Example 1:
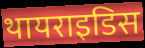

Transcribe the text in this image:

थायराइडिस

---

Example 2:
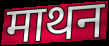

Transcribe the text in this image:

माथन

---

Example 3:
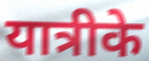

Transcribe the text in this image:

यात्रीके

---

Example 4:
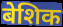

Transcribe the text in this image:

बेशिक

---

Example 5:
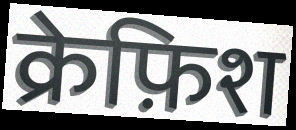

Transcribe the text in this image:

क्रेफ़िश